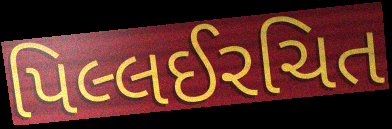
પિલ્લઈરચિત